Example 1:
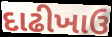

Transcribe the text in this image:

દાઢીખાઉ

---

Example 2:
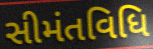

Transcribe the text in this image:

સીમંતવિધિ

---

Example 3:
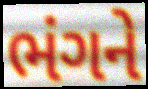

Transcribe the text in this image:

ભંગને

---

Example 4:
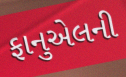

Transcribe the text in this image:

ફાનુએલની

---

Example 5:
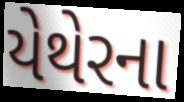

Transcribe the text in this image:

યેથેરના